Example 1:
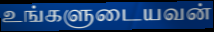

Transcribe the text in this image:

உங்களுடையவன்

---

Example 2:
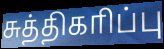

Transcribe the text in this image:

சுத்திகரிப்பு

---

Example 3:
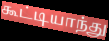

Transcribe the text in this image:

கூட்டியாந்து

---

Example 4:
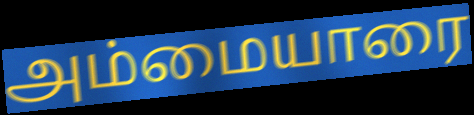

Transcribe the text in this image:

அம்மையாரை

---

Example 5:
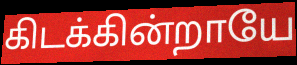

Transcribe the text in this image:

கிடக்கின்றாயே